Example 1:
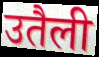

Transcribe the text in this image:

उतैली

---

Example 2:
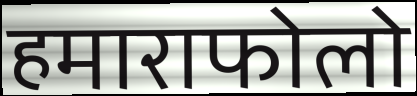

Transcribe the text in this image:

हमाराफोलो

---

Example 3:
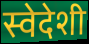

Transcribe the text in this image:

स्वेदेशी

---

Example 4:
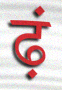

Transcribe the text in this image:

ढ़ं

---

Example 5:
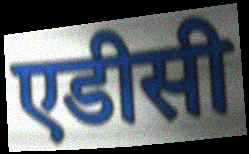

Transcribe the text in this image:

एडीसी